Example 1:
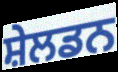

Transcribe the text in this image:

ਸ਼ੇਲਡਨ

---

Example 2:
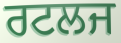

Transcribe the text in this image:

ਰਟਲਜ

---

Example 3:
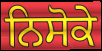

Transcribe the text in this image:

ਨਿਸੋਕੇ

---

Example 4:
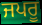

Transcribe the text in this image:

ਜਪਰੂ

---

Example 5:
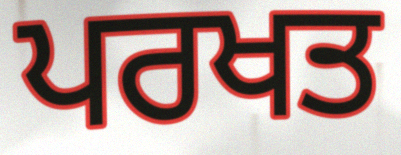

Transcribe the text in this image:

ਪਰਖਤ